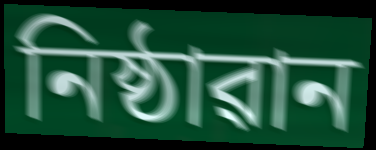
নিষ্ঠাৱান